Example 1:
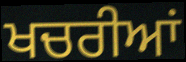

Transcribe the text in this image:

ਖਚਰੀਆਂ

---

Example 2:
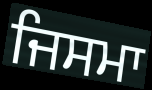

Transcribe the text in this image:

ਜਿਸਮਾ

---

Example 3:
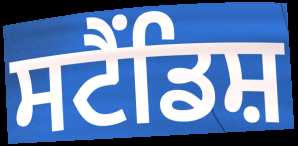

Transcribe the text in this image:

ਸਟੈਂਡਿਸ਼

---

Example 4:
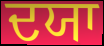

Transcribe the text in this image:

ਦਯਾ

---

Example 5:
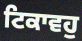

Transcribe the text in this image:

ਟਿਕਾਵਹੁ